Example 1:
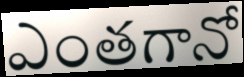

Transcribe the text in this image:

ఎంతగానో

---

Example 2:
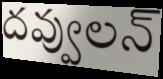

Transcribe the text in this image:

దవ్వులన్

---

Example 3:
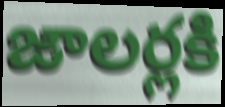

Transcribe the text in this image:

జాలర్లకి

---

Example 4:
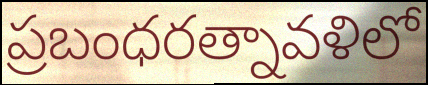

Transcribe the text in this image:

ప్రబంధరత్నావళిలో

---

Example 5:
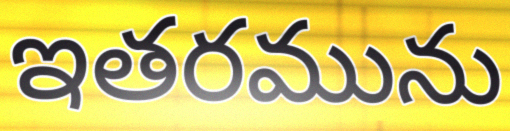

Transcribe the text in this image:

ఇతరమును